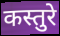
कस्तुरे